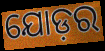
ଯୋଡ଼ର